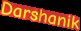
Darshanik